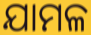
ଯାମଳ